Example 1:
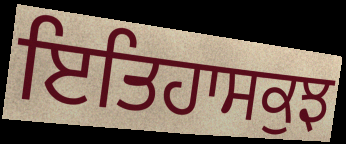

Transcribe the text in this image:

ਇਤਿਹਾਸਕੁਝ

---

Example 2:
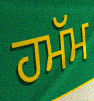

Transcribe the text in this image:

ਹਮੱਮ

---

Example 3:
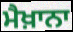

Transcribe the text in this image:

ਮੈਖ਼ਾਨਾ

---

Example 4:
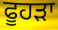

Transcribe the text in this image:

ਫੂਹੜਾ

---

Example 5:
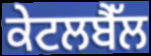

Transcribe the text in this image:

ਕੇਟਲਬੈੱਲ